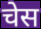
चेस